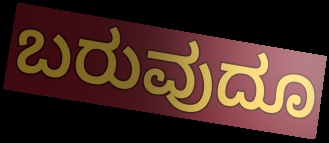
ಬರುವುದೂ